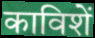
काविशें